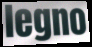
legno